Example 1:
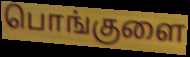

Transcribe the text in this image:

பொங்குளை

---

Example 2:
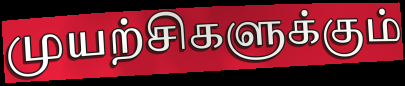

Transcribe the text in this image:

முயற்சிகளுக்கும்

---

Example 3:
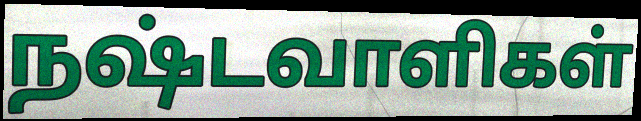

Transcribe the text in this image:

நஷ்டவாளிகள்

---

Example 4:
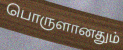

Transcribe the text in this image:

பொருளானதும்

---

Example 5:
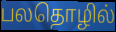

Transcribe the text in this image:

பலதொழில்